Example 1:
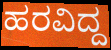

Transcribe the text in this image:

ಹರವಿದ್ದ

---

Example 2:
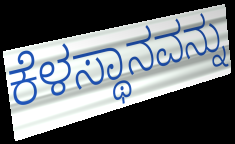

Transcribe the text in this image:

ಕೆಳಸ್ಥಾನವನ್ನು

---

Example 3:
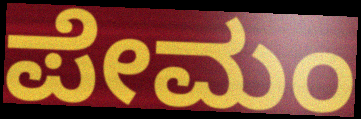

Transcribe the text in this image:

ಪೇಮಂ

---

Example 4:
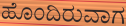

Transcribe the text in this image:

ಹೊಂದಿರುವಾಗ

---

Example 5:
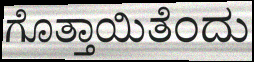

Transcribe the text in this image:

ಗೊತ್ತಾಯಿತೆಂದು